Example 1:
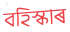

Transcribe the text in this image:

বহিস্কাৰ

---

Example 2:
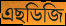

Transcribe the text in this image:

এছডিজি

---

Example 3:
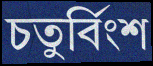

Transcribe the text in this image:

চতুৰ্বিংশ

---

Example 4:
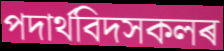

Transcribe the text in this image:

পদাৰ্থবিদসকলৰ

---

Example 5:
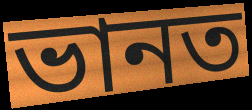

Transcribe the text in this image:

ভানত